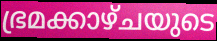
ഭ്രമക്കാഴ്ചയുടെ